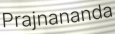
Prajnananda